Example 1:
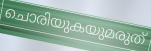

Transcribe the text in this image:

ചൊരിയുകയുമരുത്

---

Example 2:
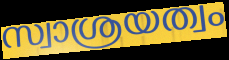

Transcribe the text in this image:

സ്വാശ്രയത്വം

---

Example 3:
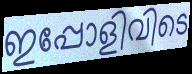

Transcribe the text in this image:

ഇപ്പോളിവിടെ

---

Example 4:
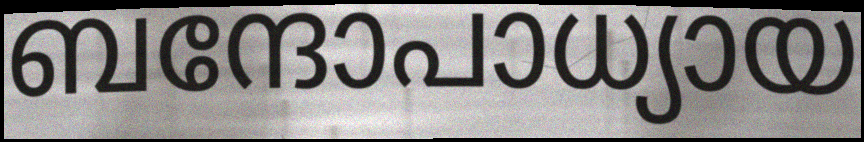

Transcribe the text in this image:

ബന്ദോപാധ്യായ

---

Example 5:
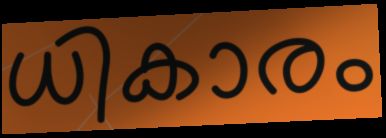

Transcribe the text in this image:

ധികാരം